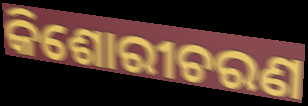
କିଶୋରୀଚରଣ